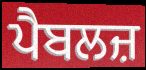
ਪੈਬਲਜ਼